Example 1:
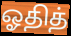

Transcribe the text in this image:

ஓதித்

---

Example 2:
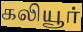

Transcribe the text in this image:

கலியூர்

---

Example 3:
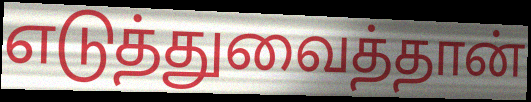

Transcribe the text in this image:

எடுத்துவைத்தான்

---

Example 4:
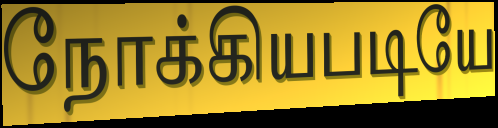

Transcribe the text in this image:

நோக்கியபடியே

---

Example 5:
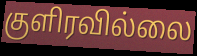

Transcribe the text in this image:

குளிரவில்லை